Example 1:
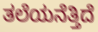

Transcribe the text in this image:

ತಲೆಯನೆತ್ತಿದೆ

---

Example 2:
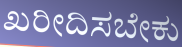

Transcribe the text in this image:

ಖರೀದಿಸಬೇಕು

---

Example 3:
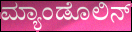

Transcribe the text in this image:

ಮ್ಯಾಂಡೊಲಿನ್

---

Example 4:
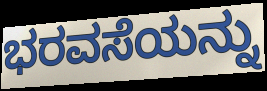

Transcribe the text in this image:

ಭರವಸೆಯನ್ನು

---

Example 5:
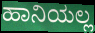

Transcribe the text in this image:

ಹಾನಿಯಲ್ಲ